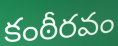
కంఠీరవం